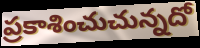
ప్రకాశించుచున్నదో